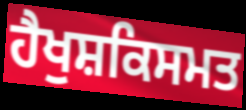
ਹੈਖੁਸ਼ਕਿਸਮਤ